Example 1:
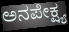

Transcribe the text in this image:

ಅನಪೇಕ್ಷ್ಯ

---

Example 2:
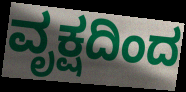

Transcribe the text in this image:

ವೃಕ್ಷದಿಂದ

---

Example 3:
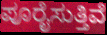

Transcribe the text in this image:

ಪೂರೈಸುತ್ತಿವೆ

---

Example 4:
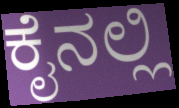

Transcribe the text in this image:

ಕೈನಲ್ಲಿ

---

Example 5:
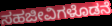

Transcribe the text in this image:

ಸಹಜೀವಿಗಳೊಡನೆ